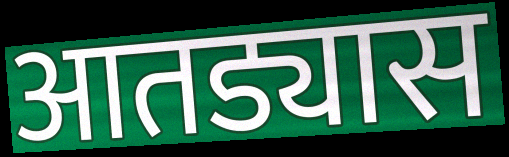
आतड्यास